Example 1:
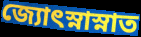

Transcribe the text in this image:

জ্যোৎস্নাস্নাত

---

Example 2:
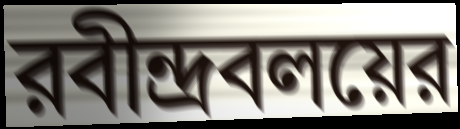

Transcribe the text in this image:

রবীন্দ্রবলয়ের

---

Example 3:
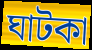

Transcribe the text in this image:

ঘাটকা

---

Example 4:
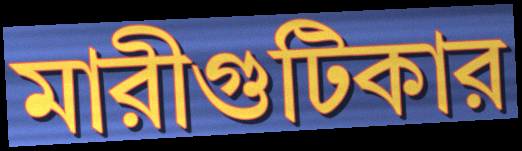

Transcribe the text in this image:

মারীগুটিকার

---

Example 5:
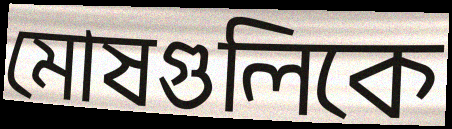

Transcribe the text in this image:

মোষগুলিকে